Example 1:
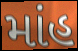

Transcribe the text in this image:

માંહ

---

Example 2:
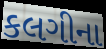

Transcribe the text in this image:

કલગીના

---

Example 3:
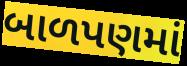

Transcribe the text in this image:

બાળપણમાં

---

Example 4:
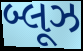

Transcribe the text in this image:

બ્લૂઝ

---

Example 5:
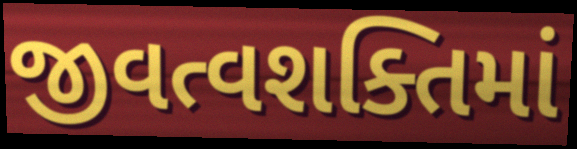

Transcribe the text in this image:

જીવત્વશક્તિમાં